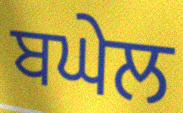
ਬਘੇਲ